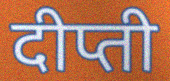
दीप्ती